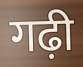
गढ़ी